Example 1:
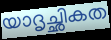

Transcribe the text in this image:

യാദൃച്ഛികത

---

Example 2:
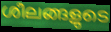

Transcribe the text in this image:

ശീലങ്ങളുടെ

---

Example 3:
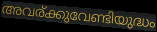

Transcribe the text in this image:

അവര്ക്കുവേണ്ടിയുദ്ധം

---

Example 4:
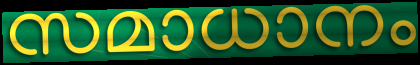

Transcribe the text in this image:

സമാധാനം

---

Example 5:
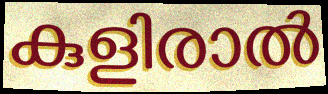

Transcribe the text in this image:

കുളിരാൽ